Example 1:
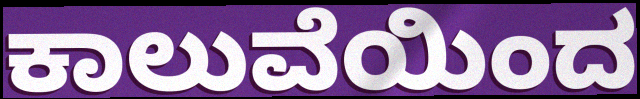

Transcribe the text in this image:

ಕಾಲುವೆಯಿಂದ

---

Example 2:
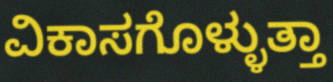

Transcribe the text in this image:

ವಿಕಾಸಗೊಳ್ಳುತ್ತಾ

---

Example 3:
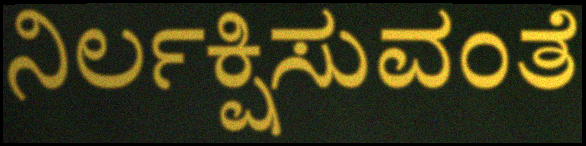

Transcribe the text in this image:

ನಿರ್ಲಕ್ಷಿಸುವಂತೆ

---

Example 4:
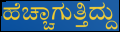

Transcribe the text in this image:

ಹೆಚ್ಚಾಗುತ್ತಿದ್ದು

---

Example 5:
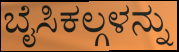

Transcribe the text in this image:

ಬೈಸಿಕಲ್ಗಳನ್ನು